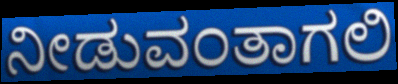
ನೀಡುವಂತಾಗಲಿ